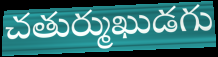
చతుర్ముఖుడగు